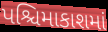
પશ્ચિમાકાશમાં